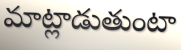
మాట్లాడుతుంటా